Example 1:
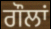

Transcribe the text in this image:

ਗੌਲਾਂ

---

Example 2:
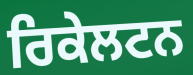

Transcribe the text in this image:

ਰਿਕੇਲਟਨ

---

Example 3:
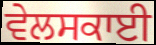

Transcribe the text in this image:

ਵੇਲਸਕਾਈ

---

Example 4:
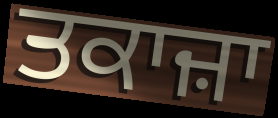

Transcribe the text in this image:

ਤਕਾਜ਼ਾ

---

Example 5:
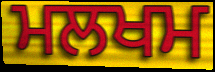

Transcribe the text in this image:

ਮਲਖਮ